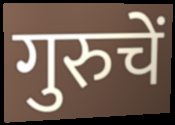
गुरुचें